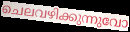
ചെലവഴിക്കുന്നുവോ